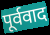
पूर्ववाद